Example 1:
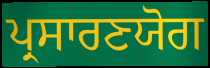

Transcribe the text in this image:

ਪ੍ਰਸਾਰਣਯੋਗ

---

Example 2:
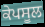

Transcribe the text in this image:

ਕੇਪਸੂਲ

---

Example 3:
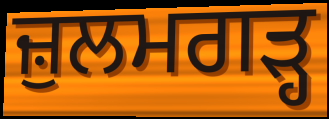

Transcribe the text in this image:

ਜ਼ੁਲਮਗੜ੍ਹ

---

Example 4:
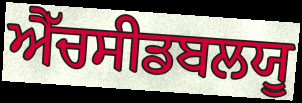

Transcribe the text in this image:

ਐੱਚਸੀਡਬਲਯੂ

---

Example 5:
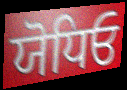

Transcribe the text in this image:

ਯੋਧਿਓ